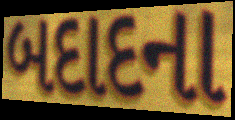
બદાદના